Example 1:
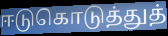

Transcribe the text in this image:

ஈடுகொடுத்துத்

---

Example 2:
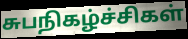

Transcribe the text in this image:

சுபநிகழ்ச்சிகள்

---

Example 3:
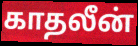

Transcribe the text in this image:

காதலீன்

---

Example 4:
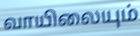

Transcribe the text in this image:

வாயிலையும்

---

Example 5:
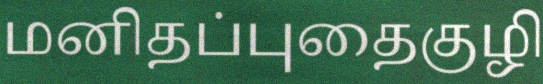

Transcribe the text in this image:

மனிதப்புதைகுழி